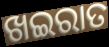
ଖଇରାତ